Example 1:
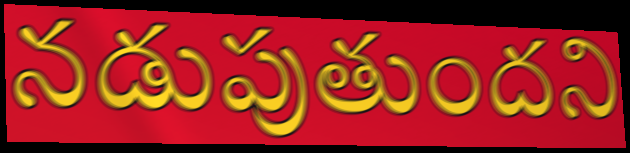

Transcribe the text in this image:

నడుపుతుందని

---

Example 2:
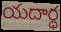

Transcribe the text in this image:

యదార్ధ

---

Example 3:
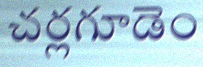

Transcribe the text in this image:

చర్లగూడెం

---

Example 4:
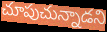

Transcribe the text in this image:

చూపుచున్నాడని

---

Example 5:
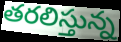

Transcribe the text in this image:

తరలిస్తున్న